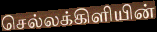
செல்லக்கிளியின்